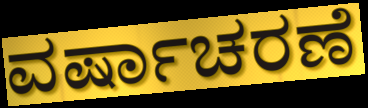
ವರ್ಷಾಚರಣೆ